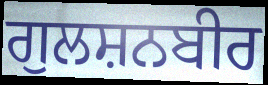
ਗੁਲਸ਼ਨਬੀਰ